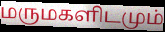
மருமகளிடமும்